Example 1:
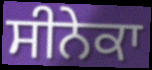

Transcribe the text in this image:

ਸੀਨੇਕਾ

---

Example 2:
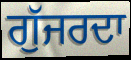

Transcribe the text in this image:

ਗੁੱਜਰਦਾ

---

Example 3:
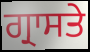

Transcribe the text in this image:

ਗ੍ਰਾਸਤੇ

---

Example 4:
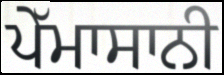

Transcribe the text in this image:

ਪੇੱਮਾਸਾਨੀ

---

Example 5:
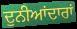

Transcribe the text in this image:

ਦੁਨੀਆਂਦਾਰਾਂ